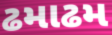
ઢમાઢમ